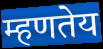
म्हणतेय